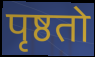
पृष्ठतो